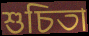
শুচিতা